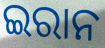
ଇରାନ